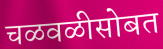
चळवळीसोबत